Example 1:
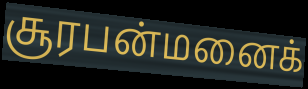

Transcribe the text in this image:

சூரபன்மனைக்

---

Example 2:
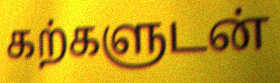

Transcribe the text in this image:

கற்களுடன்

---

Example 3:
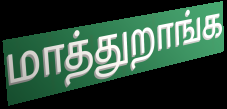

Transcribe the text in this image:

மாத்துறாங்க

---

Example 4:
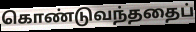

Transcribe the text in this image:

கொண்டுவந்ததைப்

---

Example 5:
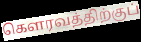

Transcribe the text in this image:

கௌரவத்திற்குப்